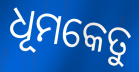
ଧୂମକେତୁ